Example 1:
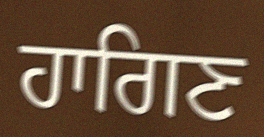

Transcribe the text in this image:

ਹਾਗਿਣ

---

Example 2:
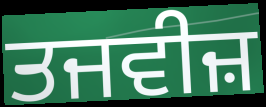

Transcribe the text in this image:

ਤਜਵੀਜ਼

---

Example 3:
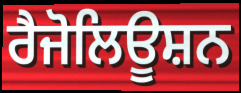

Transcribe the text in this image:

ਰੈਜੋਲਿਊਸ਼ਨ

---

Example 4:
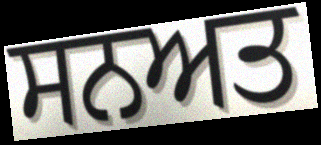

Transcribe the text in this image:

ਸਨਅਤ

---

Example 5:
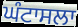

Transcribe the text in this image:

ਘੰਟਾਸਲਾ